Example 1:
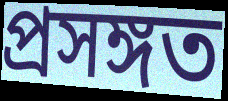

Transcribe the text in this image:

প্ৰসঙ্গত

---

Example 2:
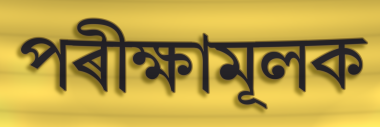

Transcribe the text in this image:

পৰীক্ষামূলক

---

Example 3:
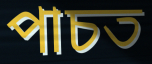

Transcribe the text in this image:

পাচত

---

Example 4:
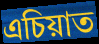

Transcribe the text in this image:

এচিয়াত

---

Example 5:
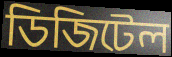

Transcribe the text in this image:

ডিজিটেল